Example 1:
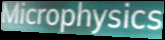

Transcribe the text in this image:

Microphysics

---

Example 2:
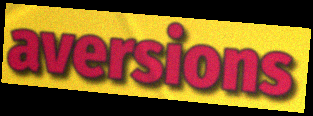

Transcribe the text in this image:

aversions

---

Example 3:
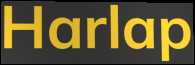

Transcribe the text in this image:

Harlap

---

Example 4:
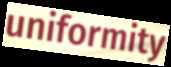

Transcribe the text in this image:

uniformity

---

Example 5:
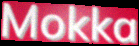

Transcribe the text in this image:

Mokka